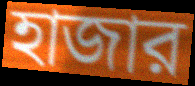
হাজার